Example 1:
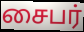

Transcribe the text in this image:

சைபர்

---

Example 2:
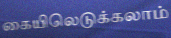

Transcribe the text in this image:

கையிலெடுக்கலாம்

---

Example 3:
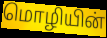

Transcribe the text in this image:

மொழியின்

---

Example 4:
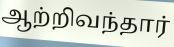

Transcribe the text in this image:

ஆற்றிவந்தார்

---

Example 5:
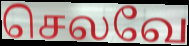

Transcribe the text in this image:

செலவே